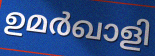
ഉമർഖാളി